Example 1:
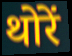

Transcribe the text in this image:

थोरें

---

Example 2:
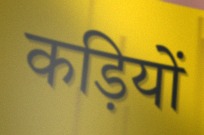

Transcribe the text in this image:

कड़ियों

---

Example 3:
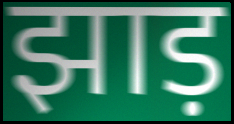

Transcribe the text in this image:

झाड़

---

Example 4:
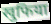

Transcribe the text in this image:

खुफिया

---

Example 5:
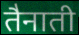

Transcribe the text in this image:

तैनाती